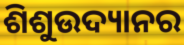
ଶିଶୁଉଦ୍ୟାନର